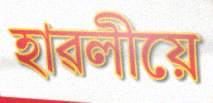
হাৱলীয়ে